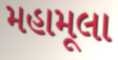
મહામૂલા